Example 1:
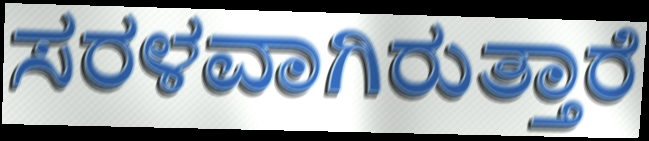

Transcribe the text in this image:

ಸರಳವಾಗಿರುತ್ತಾರೆ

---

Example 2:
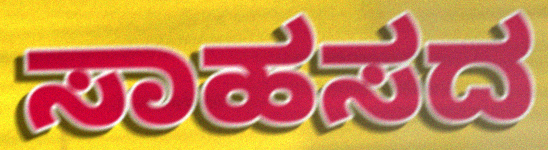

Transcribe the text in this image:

ಸಾಹಸದ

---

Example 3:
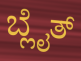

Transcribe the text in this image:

ಬ್ಲೈತ್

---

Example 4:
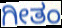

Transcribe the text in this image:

ಗೀತಂ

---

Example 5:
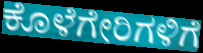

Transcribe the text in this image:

ಕೊಳೆಗೇರಿಗಳಿಗೆ